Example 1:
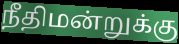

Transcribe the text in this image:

நீதிமன்றுக்கு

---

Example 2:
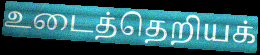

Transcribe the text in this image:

உடைத்தெறியக்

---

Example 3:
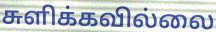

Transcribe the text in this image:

சுளிக்கவில்லை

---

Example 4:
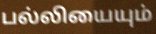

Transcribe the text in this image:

பல்லியையும்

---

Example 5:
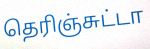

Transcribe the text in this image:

தெரிஞ்சுட்டா